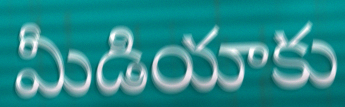
మీడియాకు